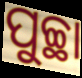
ପୁଚ୍ଛା